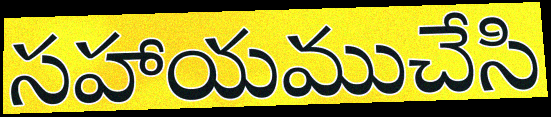
సహాయముచేసి